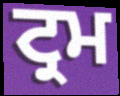
ਟ੍ਰਮ